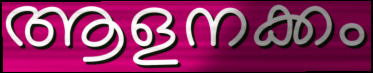
ആളനക്കം